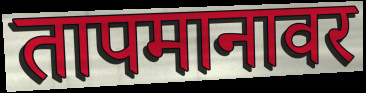
तापमानावर